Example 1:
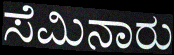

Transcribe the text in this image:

ಸೆಮಿನಾರು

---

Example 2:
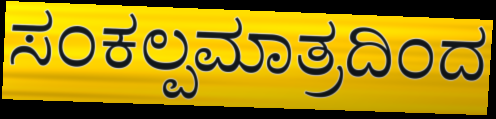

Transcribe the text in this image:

ಸಂಕಲ್ಪಮಾತ್ರದಿಂದ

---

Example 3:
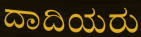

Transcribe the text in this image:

ದಾದಿಯರು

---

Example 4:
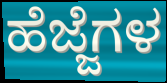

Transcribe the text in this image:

ಹೆಜ್ಜೆಗಳ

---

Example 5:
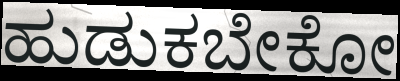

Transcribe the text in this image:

ಹುಡುಕಬೇಕೋ